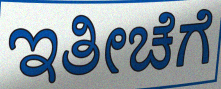
ಇತೀಚೆಗೆ